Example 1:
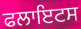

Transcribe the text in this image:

ਫਲਾਇਟਸ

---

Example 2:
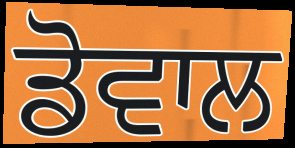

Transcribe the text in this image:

ਡੋਵਾਲ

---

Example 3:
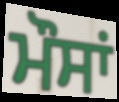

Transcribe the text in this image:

ਮੌਸਾਂ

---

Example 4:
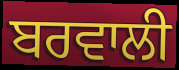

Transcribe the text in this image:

ਬਰਵਾਲੀ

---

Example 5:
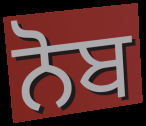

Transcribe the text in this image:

ਨੋਬ